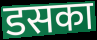
डसका